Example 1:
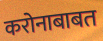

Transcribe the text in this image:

करोनाबाबत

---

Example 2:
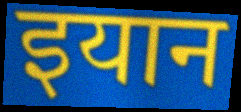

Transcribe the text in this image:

इयान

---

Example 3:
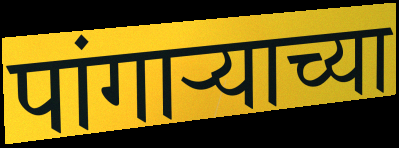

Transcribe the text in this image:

पांगार्‍याच्या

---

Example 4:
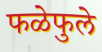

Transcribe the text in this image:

फळेफुले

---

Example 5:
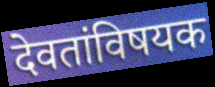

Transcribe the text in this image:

देवतांविषयक